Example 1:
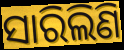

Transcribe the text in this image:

ସାରିଲିଣି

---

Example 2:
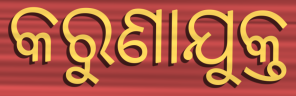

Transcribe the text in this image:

କରୁଣାଯୁକ୍ତ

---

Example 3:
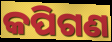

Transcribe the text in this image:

କପିଗଣ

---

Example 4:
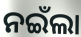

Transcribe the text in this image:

ନଇଁଲା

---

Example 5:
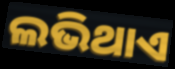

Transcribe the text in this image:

ଲଭିଥାଏ